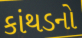
કાંથડનો